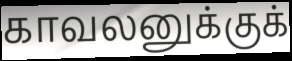
காவலனுக்குக்